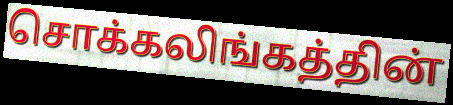
சொக்கலிங்கத்தின்